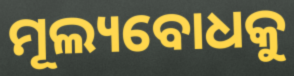
ମୂଲ୍ୟବୋଧକୁ